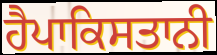
ਹੈਪਾਕਿਸਤਾਨੀ